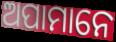
ଅପାମାନେ